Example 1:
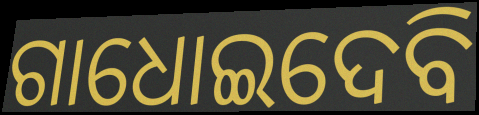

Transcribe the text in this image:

ଗାଧୋଇଦେବି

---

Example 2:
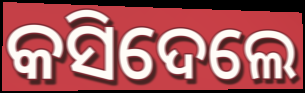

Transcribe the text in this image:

କସିଦେଲେ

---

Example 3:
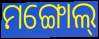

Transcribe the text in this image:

ମଙ୍ଗୋଲ୍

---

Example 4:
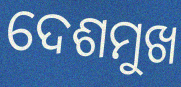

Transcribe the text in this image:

ଦେଶମୁଖ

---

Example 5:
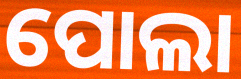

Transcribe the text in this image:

ପୋଲା